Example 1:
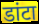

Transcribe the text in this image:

डांटा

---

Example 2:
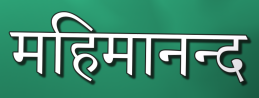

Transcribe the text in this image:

महिमानन्द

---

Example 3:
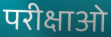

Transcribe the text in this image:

परीक्षाओ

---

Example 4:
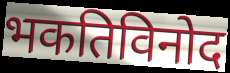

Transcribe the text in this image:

भकतिविनोद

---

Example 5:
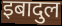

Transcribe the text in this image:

इबादुल